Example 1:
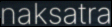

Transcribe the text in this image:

naksatra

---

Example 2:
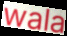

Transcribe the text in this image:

wala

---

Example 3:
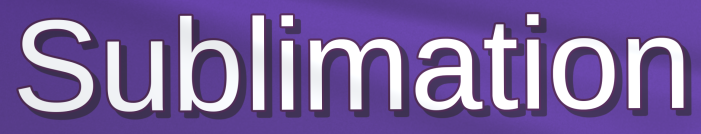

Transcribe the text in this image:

Sublimation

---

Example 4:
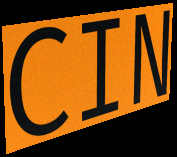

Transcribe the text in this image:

CIN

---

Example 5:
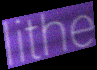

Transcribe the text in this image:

lithe